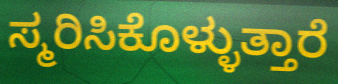
ಸ್ಮರಿಸಿಕೊಳ್ಳುತ್ತಾರೆ